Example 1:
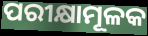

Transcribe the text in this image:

ପରୀକ୍ଷାମୂଳକ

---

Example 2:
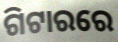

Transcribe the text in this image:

ଗିଟାରରେ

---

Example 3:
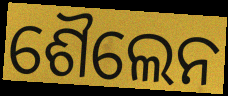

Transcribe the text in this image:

ଶୈଲେନ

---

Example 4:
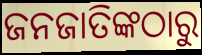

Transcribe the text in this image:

ଜନଜାତିଙ୍କଠାରୁ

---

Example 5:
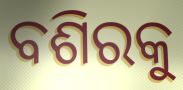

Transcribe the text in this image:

ବଶିରକୁ